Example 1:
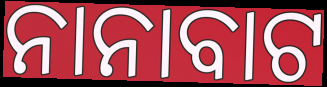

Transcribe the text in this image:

ନାନାବାଟ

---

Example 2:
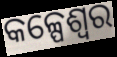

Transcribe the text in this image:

କଳ୍ପେଶ୍ୱର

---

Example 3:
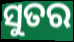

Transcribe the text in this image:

ସୁତର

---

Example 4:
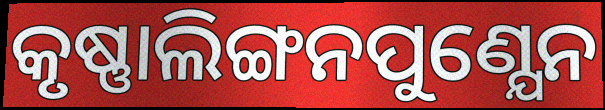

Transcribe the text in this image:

କୃଷ୍ଣାଲିଙ୍ଗନପୁଣ୍ଯେନ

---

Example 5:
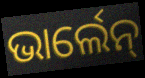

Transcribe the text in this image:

ଭାର୍ଲେନ୍